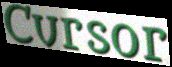
Cursor